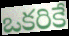
ఒకరికే